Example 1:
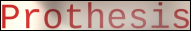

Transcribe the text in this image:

Prothesis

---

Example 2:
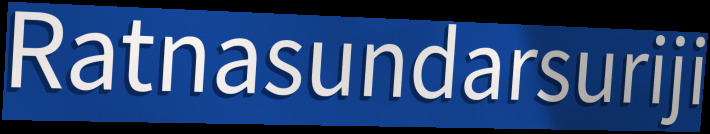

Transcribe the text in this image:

Ratnasundarsuriji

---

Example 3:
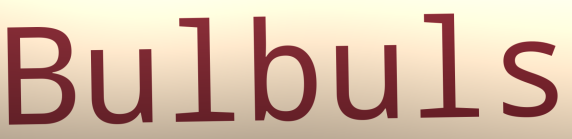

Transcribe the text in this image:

Bulbuls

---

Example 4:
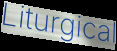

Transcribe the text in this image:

Liturgical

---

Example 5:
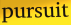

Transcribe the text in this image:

pursuit